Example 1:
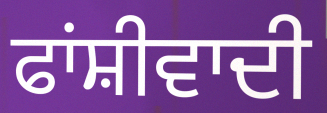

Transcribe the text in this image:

ਫਾਂਸ਼ੀਵਾਦੀ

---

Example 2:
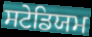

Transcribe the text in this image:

ਸਟੇਡਿਯਮ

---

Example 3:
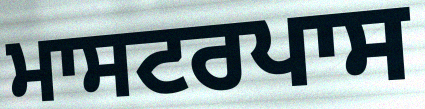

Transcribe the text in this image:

ਮਾਸਟਰਪਾਸ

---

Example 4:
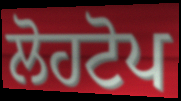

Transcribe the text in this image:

ਲੋਹਟੋਪ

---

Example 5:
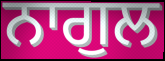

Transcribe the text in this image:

ਨਾਗੁਲ